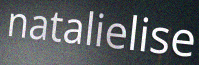
natalielise